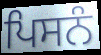
ਪਿਸਨੰ